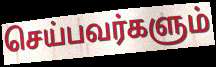
செய்பவர்களும்